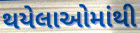
થયેલાઓમાંથી